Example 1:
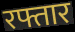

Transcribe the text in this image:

रफ्‍तार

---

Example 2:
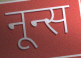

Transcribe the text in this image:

नून्स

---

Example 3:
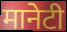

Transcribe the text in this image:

मानेटी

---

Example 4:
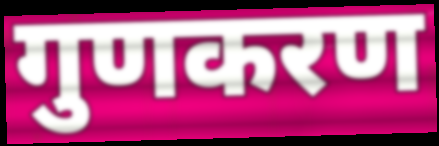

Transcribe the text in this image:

गुणकरण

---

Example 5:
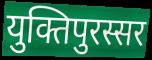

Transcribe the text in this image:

युक्तिपुरस्सर